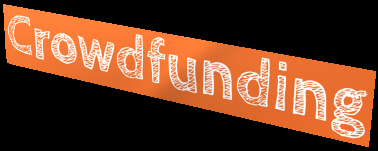
Crowdfunding